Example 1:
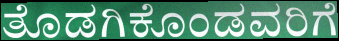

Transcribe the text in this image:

ತೊಡಗಿಕೊಂಡವರಿಗೆ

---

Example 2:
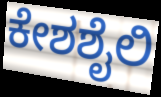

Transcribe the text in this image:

ಕೇಶಶೈಲಿ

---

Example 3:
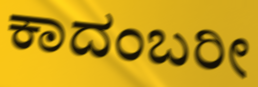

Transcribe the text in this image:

ಕಾದಂಬರೀ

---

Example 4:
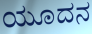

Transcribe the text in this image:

ಯೂದನ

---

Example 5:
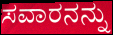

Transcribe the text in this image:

ಸವಾರನನ್ನು